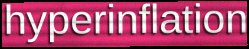
hyperinflation